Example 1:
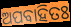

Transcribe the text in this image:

ଅପବାହିତଃ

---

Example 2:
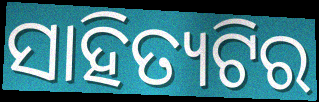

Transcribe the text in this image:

ସାହିତ୍ୟଟିର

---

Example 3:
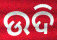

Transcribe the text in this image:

ଉଦି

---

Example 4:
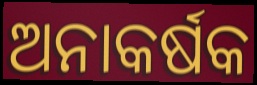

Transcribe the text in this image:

ଅନାକର୍ଷକ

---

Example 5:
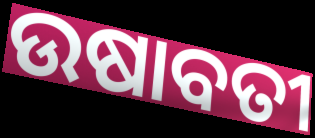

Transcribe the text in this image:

ଉଷାବତୀ